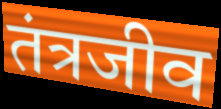
तंत्रजीव